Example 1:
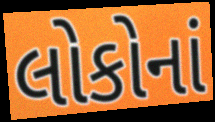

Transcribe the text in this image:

લોકોનાં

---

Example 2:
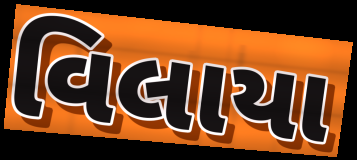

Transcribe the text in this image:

વિલાયા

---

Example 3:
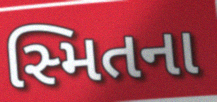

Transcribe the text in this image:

સ્મિતના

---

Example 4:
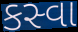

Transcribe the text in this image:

કસ્વા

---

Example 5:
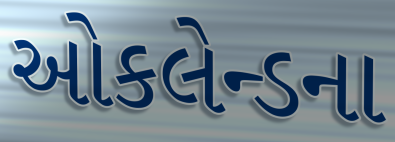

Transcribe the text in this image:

ઓકલેન્ડના